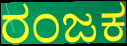
ರಂಜಕ